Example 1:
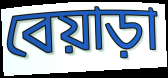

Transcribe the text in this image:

বেয়াড়া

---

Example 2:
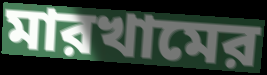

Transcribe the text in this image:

মারখামের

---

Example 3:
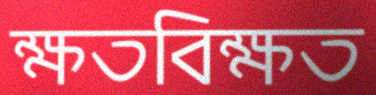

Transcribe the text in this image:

ক্ষতবিক্ষত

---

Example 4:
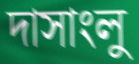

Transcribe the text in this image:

দাসাংলু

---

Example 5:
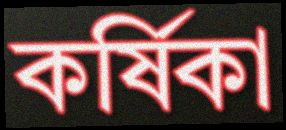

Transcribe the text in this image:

কর্ষিকা